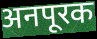
अनपूरक